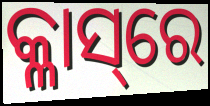
କ୍ଳାସ୍‌ରେ